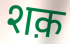
शक़